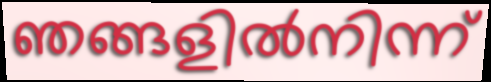
ഞങ്ങളിൽനിന്ന്